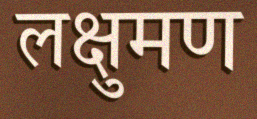
लक्षुमण